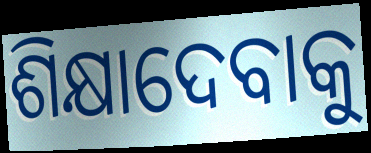
ଶିକ୍ଷାଦେବାକୁ